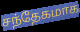
சந்தேகமாக